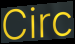
Circ